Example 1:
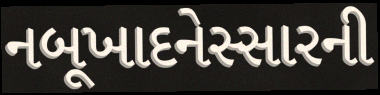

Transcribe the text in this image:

નબૂખાદનેસ્સારની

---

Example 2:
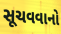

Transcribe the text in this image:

સૂચવવાનો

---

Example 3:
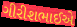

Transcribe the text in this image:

ગીરીશભાઈએ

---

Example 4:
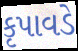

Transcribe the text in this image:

કૃપાવડે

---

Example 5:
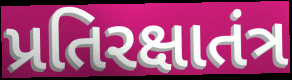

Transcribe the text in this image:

પ્રતિરક્ષાતંત્ર